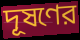
দূষণের